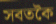
সবতকৈ